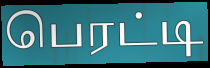
பெரட்டி